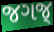
જગજ્